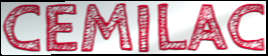
CEMILAC